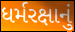
ધર્મરક્ષાનું